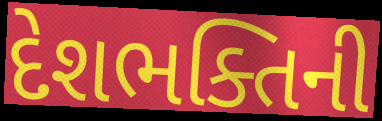
દેશભક્તિની